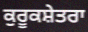
ਕੁਰੂਕਸ਼ੇਤਰਾ